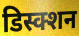
डिस्क्शन